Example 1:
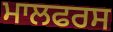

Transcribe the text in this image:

ਮਾਲਫਰਸ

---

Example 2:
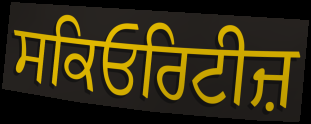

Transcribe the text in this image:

ਸਕਿਓਰਿਟੀਜ਼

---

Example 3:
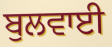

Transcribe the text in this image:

ਬੁਲਵਾਈ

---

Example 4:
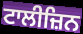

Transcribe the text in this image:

ਟਾਲੀਜ਼ਿਨ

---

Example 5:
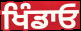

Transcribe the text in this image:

ਖਿੰਡਾਓ